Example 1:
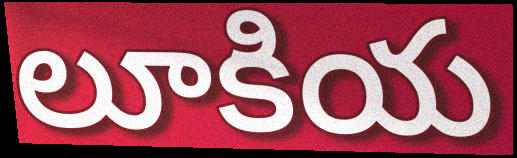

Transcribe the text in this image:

లూకియ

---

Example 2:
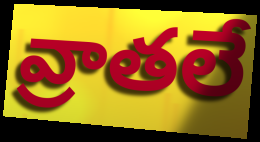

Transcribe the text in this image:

వ్రాతలే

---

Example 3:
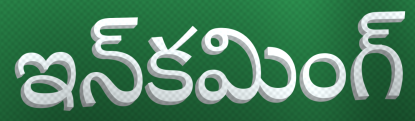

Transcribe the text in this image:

ఇన్‌కమింగ్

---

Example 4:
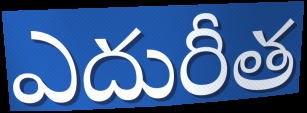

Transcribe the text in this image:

ఎదురీత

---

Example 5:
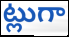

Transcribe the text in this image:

ట్లుగా